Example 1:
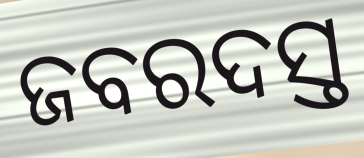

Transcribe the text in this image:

ଜବରଦସ୍ତ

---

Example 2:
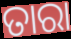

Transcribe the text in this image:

ତାରା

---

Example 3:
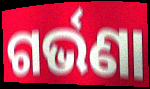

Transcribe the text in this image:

ଗର୍ଭଣା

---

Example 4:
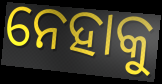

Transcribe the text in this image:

ନେହାକୁ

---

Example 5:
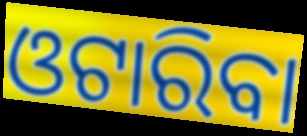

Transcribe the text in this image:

ଓଟାରିବା